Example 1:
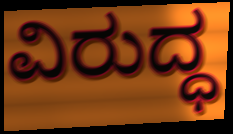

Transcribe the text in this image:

ವಿರುದ್ಧ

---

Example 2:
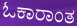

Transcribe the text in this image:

ಓಕಾರಾಂತ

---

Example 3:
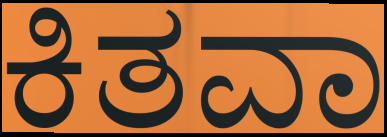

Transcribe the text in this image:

ಕಿತವಾ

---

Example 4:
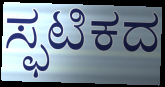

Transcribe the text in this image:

ಸ್ಫಟಿಕದ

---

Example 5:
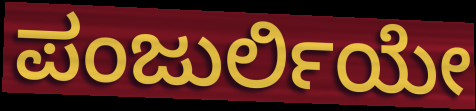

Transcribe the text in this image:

ಪಂಜುರ್ಲಿಯೇ